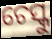
ଚେସ୍କୁ